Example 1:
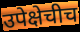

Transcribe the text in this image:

उपेक्षेचीच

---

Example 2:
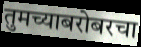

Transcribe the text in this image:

तुमच्याबरोबरचा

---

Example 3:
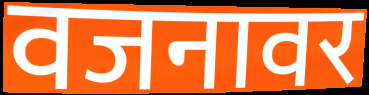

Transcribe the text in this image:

वजनावर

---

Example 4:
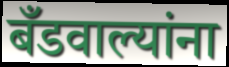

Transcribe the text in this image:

बँडवाल्यांना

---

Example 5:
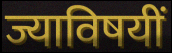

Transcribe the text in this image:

ज्याविषयीं